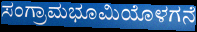
ಸಂಗ್ರಾಮಭೂಮಿಯೊಳಗನೆ